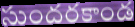
సుందరకాండ